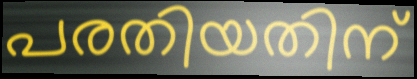
പരതിയതിന്